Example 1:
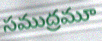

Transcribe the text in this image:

సముద్రమూ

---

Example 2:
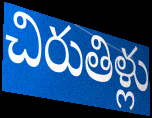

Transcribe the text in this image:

చిరుతిళ్లు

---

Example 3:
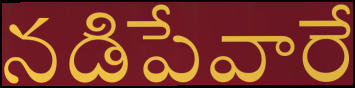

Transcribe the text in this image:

నడిపేవారే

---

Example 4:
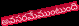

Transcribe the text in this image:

అవసరమేముంటుంది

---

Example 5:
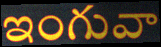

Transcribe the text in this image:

ఇంగువా